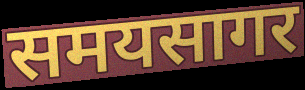
समयसागर